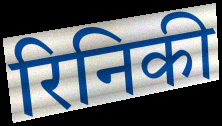
रिनिकी